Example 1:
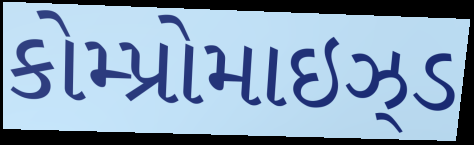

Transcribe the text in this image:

કોમ્પ્રોમાઇઝ્ડ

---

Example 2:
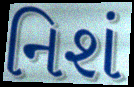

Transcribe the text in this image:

નિશં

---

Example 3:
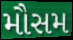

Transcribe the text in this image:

મૌસમ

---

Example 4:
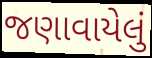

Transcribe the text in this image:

જણાવાયેલું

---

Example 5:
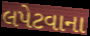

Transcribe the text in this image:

લપેટવાના